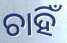
ଚାହିଁ